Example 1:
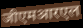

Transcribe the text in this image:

जीएमआरएल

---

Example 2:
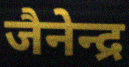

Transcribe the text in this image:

जैनेन्द्र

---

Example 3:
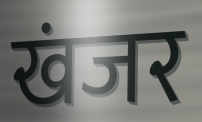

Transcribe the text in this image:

खंजर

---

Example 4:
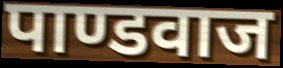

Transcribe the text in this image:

पाण्डवाज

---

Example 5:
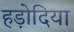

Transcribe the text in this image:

हड़ोदिया